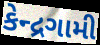
કેન્દ્રગામી